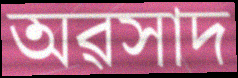
অৱসাদ